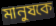
মানুষকে